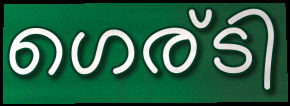
ഗെര്ടി